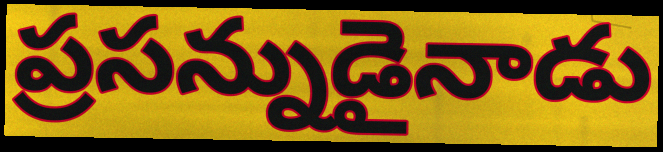
ప్రసన్నుడైనాడు